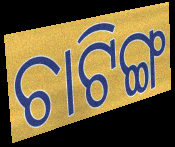
ଚାଟିଙ୍ଗ